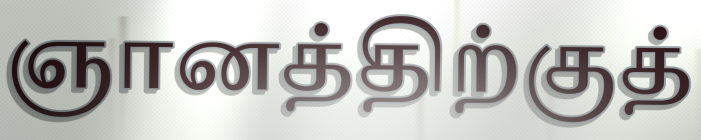
ஞானத்திற்குத்